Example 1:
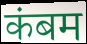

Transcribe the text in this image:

कंबम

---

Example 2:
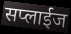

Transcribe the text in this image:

सप्लाईज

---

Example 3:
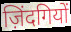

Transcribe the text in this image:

ज़िंदगियों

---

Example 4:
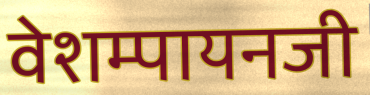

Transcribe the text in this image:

वेशम्पायनजी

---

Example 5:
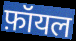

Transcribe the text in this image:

फ़ॉयल